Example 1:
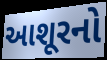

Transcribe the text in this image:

આશૂરનો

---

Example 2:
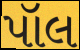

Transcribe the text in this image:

પૉલ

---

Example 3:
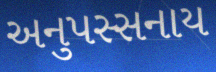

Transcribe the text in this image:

અનુપસ્સનાય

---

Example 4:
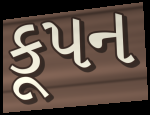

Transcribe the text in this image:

કૂપન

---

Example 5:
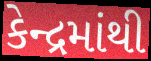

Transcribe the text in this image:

કેન્દ્રમાંથી